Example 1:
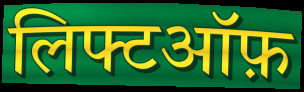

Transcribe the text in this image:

लिफ्टऑफ़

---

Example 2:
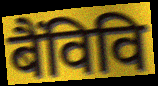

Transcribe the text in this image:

बैंविवि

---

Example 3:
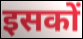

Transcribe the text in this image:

इसकों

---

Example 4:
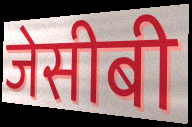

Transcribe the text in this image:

जेसीबी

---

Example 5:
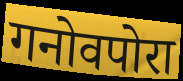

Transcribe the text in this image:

गनोवपोरा